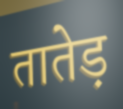
तातेड़